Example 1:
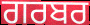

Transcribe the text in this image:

ਗਰਬਰ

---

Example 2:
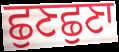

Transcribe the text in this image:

ਛੁਣਛੁਣਾ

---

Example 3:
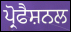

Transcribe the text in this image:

ਪ੍ਰੋਫੈਸ਼ਨਲ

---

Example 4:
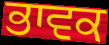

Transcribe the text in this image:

ਭਾਵਕ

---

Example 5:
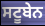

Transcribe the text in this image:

ਸਟੂਬੇਨ